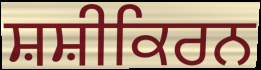
ਸ਼ਸ਼ੀਕਿਰਨ